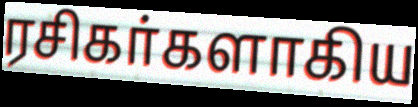
ரசிகர்களாகிய